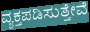
ವ್ಯಕ್ತಪಡಿಸುತ್ತೇವೆ